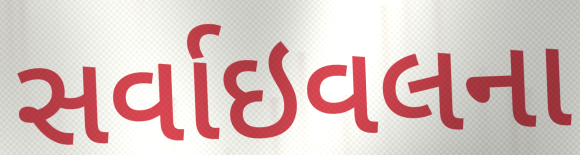
સર્વાઇવલના